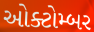
ઓક્ટોમ્બર